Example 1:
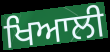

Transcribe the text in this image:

ਖਿਆਲੀ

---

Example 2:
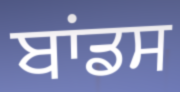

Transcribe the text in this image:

ਬਾਂਡਸ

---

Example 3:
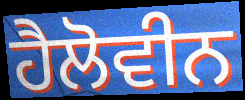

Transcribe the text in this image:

ਹੈਲੋਵੀਨ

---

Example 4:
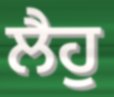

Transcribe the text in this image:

ਲੈਹੁ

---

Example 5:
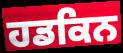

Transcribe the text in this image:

ਹਡਕਿਨ